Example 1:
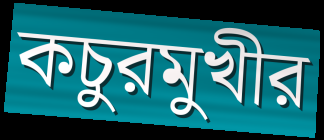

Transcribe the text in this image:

কচুরমুখীর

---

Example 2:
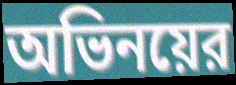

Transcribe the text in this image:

অভিনয়ের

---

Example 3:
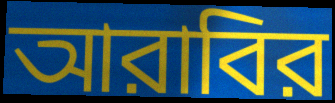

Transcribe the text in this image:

আরাবির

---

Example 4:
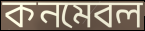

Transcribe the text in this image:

কনমেবল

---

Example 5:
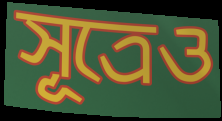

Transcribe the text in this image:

সূত্রেও